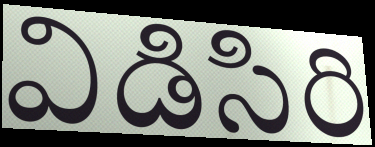
విడిసిరి